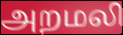
அறமலி